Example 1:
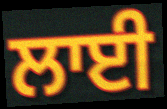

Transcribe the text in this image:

ਲਾਈ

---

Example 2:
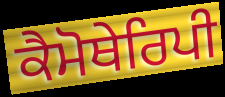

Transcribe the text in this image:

ਕੈਮੋਥੇਰਿਪੀ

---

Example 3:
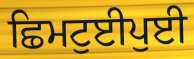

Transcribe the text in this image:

ਛਿਮਟੁਈਪੁਈ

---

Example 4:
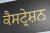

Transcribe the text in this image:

ਕੈਸਟ੍ਰੇਸ਼ਨ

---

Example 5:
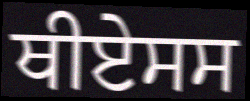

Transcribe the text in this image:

ਥੀਏਸਸ